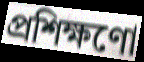
প্ৰশিক্ষণো